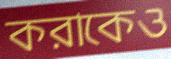
করাকেও